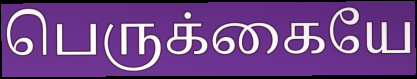
பெருக்கையே